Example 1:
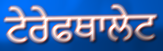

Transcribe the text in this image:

ਟੇਰੇਫਥਾਲੇਟ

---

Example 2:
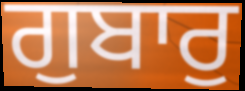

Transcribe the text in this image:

ਗੁਬਾਰੁ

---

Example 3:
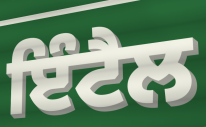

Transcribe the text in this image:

ਇੰਟੈਲ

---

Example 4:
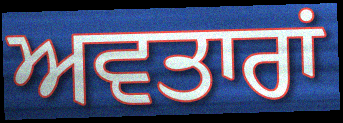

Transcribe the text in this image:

ਅਵਤਾਰਾਂ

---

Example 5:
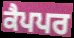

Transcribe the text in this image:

ਕੈਪਪਰ